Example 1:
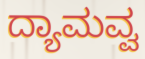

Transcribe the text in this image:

ದ್ಯಾಮವ್ವ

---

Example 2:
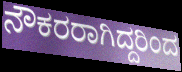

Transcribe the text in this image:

ನೌಕರರಾಗಿದ್ದರಿಂದ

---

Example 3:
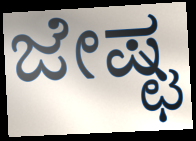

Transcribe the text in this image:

ಜೇಷ್ಟ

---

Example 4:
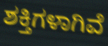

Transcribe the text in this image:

ಶಕ್ತಿಗಳಾಗಿವೆ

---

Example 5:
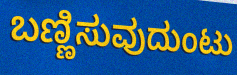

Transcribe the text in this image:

ಬಣ್ಣಿಸುವುದುಂಟು